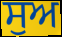
ਸੁਅ